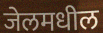
जेलमधील